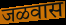
जळवास